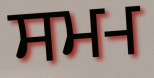
ਸਮ੍ਮ